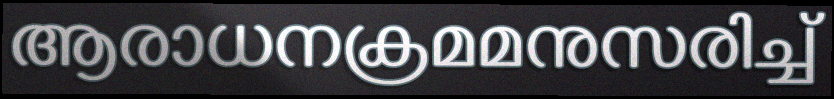
ആരാധനക്രമമനുസരിച്ച്